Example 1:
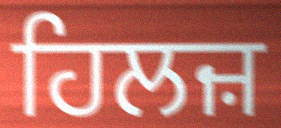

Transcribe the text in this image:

ਹਿਲਜ਼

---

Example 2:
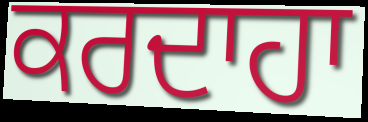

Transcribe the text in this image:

ਕਰਦਾਹਾ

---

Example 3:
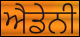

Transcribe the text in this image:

ਐਡੇਨੀ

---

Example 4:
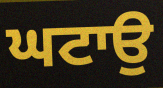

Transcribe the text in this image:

ਘਟਾਉ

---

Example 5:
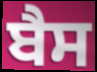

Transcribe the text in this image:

ਬੈਸ